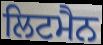
ਲਿਟਮੈਨ